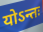
योऽन्तः